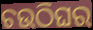
ଚଉଠିଘର